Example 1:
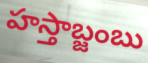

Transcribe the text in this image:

హస్తాబ్జంబు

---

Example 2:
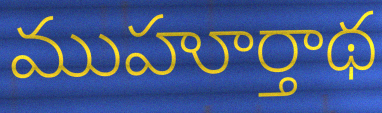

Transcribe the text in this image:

ముహూర్తాథ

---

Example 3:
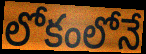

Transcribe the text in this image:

లోకంలోనే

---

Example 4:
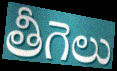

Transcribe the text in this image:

తీగెలు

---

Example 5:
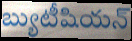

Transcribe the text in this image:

బ్యుటీషియన్